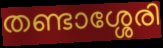
തണ്ടാശ്ശേരി